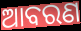
ଆବରଣ